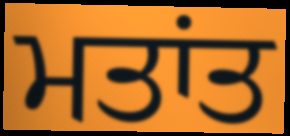
ਮਤਾਂਤ